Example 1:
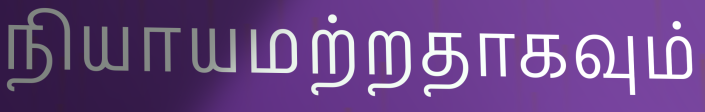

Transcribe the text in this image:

நியாயமற்றதாகவும்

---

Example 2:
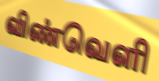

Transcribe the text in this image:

விண்வெளி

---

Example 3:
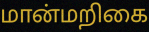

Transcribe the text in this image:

மான்மறிகை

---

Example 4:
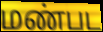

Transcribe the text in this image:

மண்பட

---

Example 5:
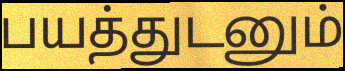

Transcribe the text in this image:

பயத்துடனும்